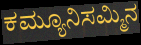
ಕಮ್ಯೂನಿಸಮ್ಮಿನ